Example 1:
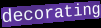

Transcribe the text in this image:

decorating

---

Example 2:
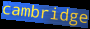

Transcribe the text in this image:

cambridge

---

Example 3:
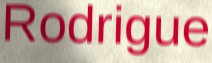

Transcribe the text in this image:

Rodrigue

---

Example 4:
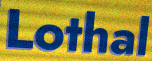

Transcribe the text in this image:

Lothal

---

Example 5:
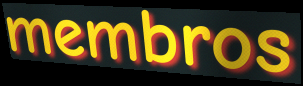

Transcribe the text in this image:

membros